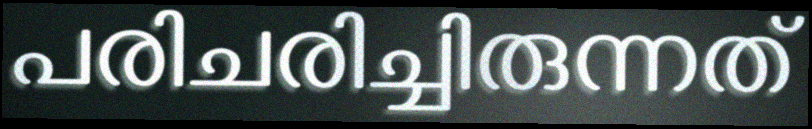
പരിചരിച്ചിരുന്നത്